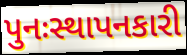
પુનઃસ્થાપનકારી